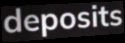
deposits